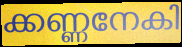
ക്കണ്ണനേകി